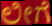
ಲೀಗೆ